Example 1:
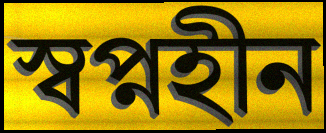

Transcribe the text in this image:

স্বপ্নহীন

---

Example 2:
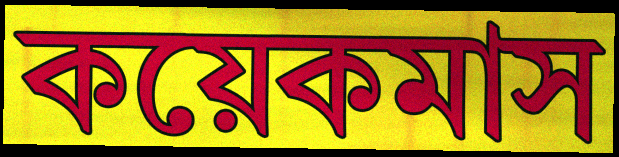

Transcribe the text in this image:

কয়েকমাস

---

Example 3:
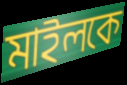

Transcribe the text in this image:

মাইলকে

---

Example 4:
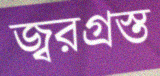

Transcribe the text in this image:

জ্বরগ্রস্ত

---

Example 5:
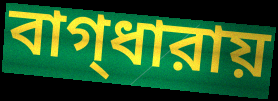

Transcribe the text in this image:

বাগ্‌ধারায়